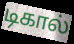
டிகால்